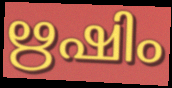
ഋഷിം